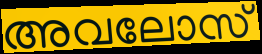
അവലോസ്